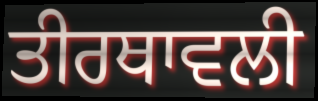
ਤੀਰਥਾਵਲੀ